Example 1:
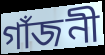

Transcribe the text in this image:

গাঁজনী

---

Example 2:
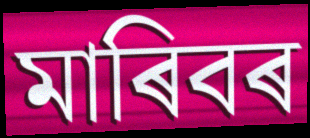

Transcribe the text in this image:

মাৰিবৰ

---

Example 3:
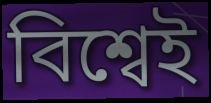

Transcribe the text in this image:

বিশ্বেই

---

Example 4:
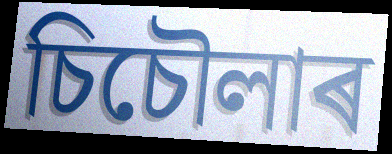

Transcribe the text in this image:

চিচৌলাৰ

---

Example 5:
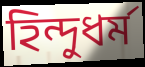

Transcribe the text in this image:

হিন্দুধৰ্ম